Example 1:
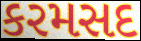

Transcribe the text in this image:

કરમસદ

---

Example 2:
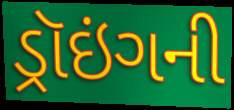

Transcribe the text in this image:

ડ્રૉઇંગની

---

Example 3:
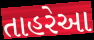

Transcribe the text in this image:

તાહરેઆ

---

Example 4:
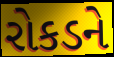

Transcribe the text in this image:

રોકડને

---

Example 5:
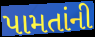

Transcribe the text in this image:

પામતાંની